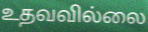
உதவவில்லை